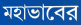
মহাভাবের